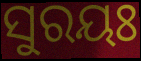
ସୁରୟଃ